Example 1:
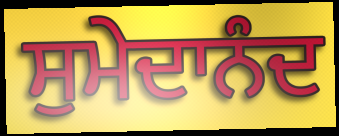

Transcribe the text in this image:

ਸੁਮੇਦਾਨੰਦ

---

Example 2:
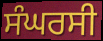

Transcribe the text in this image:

ਸੰਘਰਸੀ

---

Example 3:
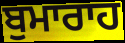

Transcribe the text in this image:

ਬੁਮਾਰਾਹ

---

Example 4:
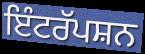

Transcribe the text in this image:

ਇੰਟਰੱਪਸ਼ਨ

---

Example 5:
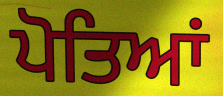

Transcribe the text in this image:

ਪੋਤਿਆਂ